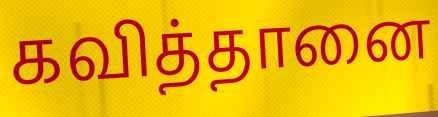
கவித்தானை